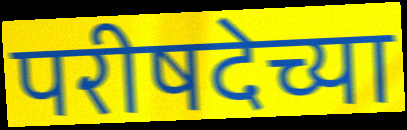
परीषदेच्या